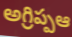
అగ్రిప్పఆ